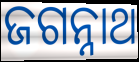
ଜଗନ୍ନାଥ